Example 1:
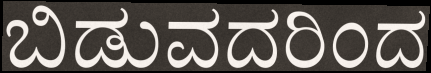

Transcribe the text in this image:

ಬಿಡುವದರಿಂದ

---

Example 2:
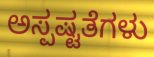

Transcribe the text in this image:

ಅಸ್ಪಷ್ಟತೆಗಳು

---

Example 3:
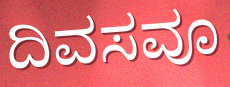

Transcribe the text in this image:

ದಿವಸವೂ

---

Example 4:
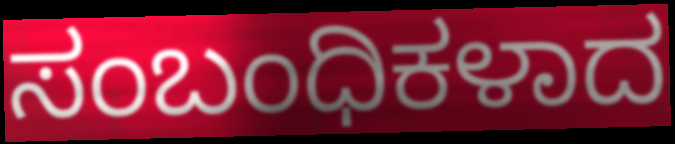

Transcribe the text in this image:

ಸಂಬಂಧಿಕಳಾದ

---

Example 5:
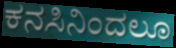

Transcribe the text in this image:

ಕನಸಿನಿಂದಲೂ